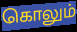
கொலும்